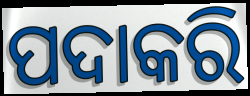
ପଦାକରି